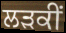
ਲੜਕੀਂ